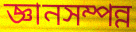
জ্ঞানসম্পন্ন